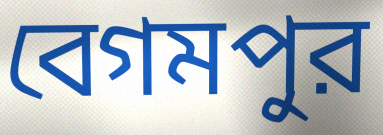
বেগমপুর